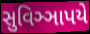
સુવિઞ્ઞાપયે